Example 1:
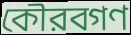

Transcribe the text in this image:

কৌরবগণ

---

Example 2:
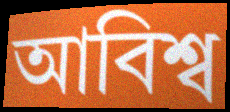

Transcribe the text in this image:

আবিশ্ব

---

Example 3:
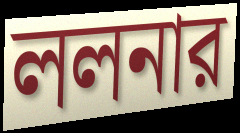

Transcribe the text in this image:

ললনার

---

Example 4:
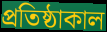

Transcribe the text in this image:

প্রতিষ্ঠাকাল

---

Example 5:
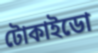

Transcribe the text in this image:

টোকাইডো